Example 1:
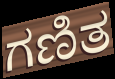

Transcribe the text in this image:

ಗಣಿತ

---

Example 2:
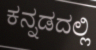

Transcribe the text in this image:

ಕನ್ನಡದಲ್ಲಿ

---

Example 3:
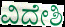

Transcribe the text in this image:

ವಿದೇಶಿ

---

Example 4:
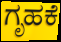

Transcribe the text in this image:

ಗೃಹಕೆ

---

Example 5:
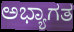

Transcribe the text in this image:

ಅಭ್ಯಾಗತ